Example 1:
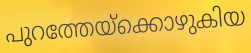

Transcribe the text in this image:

പുറത്തേയ്ക്കൊഴുകിയ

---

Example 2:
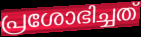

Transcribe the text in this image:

പ്രശോഭിച്ചത്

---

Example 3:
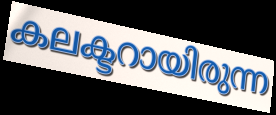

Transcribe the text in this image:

കലക്ടറായിരുന്ന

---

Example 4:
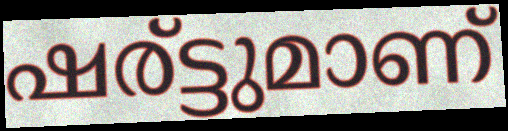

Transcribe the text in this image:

ഷര്ട്ടുമാണ്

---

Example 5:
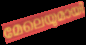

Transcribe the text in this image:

മേലെയുമായി